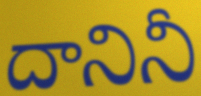
దానినీ